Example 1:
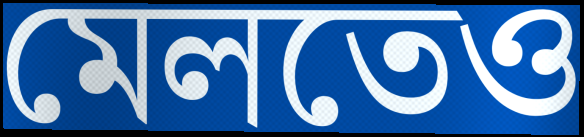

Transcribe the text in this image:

মেলতেও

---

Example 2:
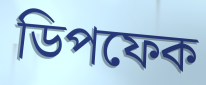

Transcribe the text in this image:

ডিপফেক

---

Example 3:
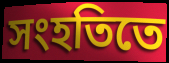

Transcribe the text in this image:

সংহতিতে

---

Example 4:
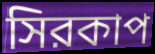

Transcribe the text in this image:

সিরকাপ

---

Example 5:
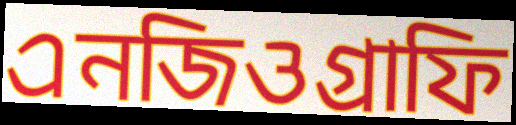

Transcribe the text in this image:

এনজিওগ্রাফি